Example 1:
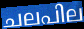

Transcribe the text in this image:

ചലപില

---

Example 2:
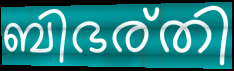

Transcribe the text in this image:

ബിഭര്തി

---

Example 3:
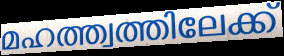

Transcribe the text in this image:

മഹത്ത്വത്തിലേക്ക്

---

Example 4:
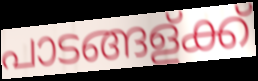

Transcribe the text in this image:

പാടങ്ങള്ക്ക്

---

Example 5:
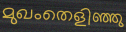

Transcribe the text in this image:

മുഖംതെളിഞ്ഞു